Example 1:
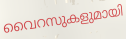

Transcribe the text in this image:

വൈറസുകളുമായി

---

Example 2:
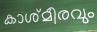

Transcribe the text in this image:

കാശ്മീരവും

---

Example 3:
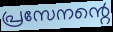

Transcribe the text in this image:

പ്രസേനന്റെ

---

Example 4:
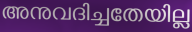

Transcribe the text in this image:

അനുവദിച്ചതേയില്ല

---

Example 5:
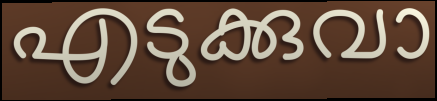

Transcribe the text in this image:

എടുക്കുവാ